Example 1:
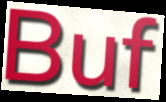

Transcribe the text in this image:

Buf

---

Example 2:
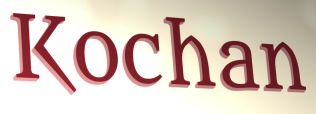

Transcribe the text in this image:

Kochan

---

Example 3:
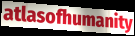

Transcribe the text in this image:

atlasofhumanity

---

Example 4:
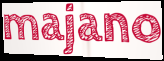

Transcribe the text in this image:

majano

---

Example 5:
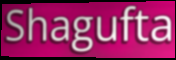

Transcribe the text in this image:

Shagufta